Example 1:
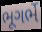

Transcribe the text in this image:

ભૂગર્ભે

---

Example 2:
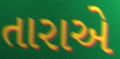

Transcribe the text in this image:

તારાએ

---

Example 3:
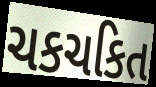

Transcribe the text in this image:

ચકચકિત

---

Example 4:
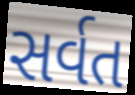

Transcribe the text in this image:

સર્વત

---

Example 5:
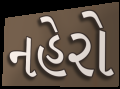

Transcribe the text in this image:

નહેરો